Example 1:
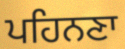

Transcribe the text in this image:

ਪਹਿਨਣਾ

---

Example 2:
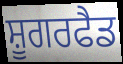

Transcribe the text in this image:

ਸ਼ੂਗਰਫੈਡ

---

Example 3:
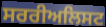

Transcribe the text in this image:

ਸਰਰੀਅਲਿਸਟ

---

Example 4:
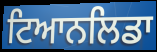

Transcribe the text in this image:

ਟਿਆਨਲਿਡਾ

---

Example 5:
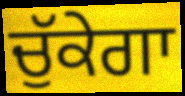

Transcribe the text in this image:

ਚੁੱਕੇਗਾ